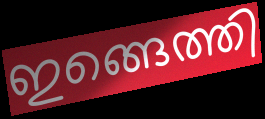
ഇങ്ങെത്തി